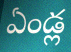
ఏండ్ల